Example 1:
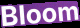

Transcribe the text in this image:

Bloom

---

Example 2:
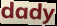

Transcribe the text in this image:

dady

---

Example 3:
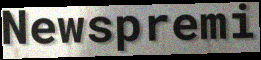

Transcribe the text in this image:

Newspremi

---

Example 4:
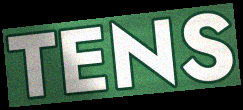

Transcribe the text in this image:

TENS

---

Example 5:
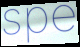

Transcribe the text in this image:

spe